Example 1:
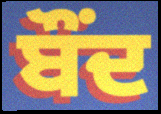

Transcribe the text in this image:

ਬੌਂਦ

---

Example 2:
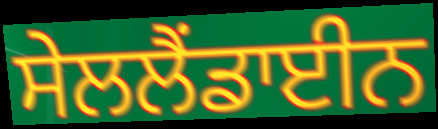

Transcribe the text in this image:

ਸੇਲਲੈਂਡਾਈਨ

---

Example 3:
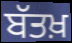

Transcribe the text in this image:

ਬੱਤਖ਼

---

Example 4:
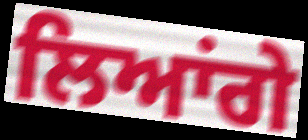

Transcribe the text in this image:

ਲਿਆਂਗੇ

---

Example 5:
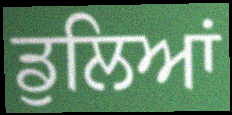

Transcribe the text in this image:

ਡੁਲਿਆਂ